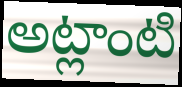
అట్లాంటి